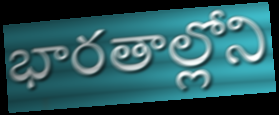
భారతాల్లోని